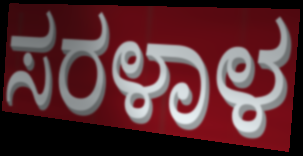
ಸರಳಾಳ